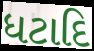
ધટાદિ